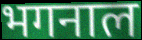
भगनाल